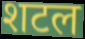
शटल